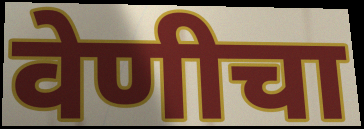
वेणीचा